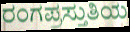
ರಂಗಪ್ರಸ್ತುತಿಯ